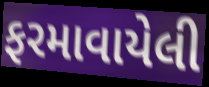
ફરમાવાયેલી